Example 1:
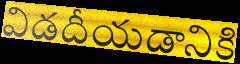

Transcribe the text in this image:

విడదీయడానికి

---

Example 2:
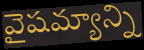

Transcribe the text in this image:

వైషమ్యాన్ని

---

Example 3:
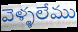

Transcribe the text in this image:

వెళ్ళలేము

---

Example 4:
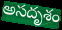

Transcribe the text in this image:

అసదృశం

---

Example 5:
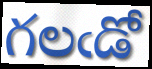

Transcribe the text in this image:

గలఁడో